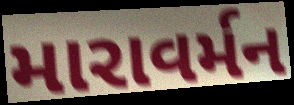
મારાવર્મન